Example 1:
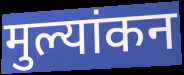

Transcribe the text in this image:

मुल्यांकन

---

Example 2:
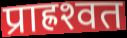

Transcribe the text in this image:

प्राह्रश्वत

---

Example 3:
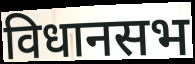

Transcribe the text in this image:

विधानसभ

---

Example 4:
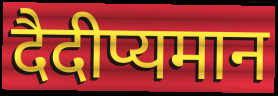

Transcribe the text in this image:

दैदीप्यमान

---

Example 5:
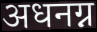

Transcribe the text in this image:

अधनग्न